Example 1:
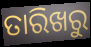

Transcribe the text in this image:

ତାରିଖରୁ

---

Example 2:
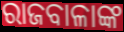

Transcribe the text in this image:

ରାଜବାଳାଙ୍କ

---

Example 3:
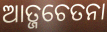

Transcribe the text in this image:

ଆତ୍ଜଚେତନା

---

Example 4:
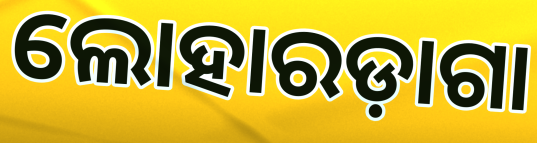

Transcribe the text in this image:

ଲୋହାରଡ଼ାଗା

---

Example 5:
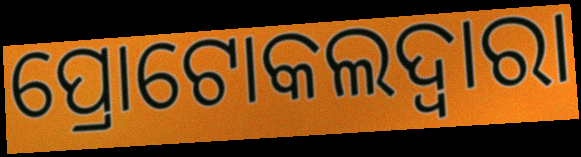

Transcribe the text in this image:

ପ୍ରୋଟୋକଲଦ୍ୱାରା